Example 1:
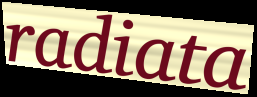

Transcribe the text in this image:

radiata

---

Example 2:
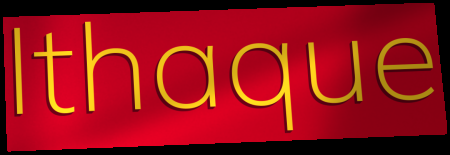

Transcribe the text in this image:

Ithaque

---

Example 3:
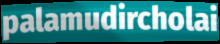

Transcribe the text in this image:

palamudircholai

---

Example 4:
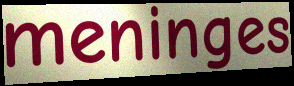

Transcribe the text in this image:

meninges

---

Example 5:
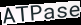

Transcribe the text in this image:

ATPase